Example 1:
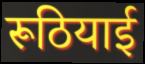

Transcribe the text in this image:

रूठियाई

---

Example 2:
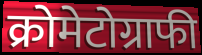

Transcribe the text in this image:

क्रोमेटोग्राफी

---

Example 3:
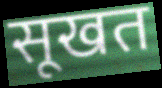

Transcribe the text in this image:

सूखत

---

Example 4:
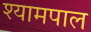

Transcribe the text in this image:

श्यामपाल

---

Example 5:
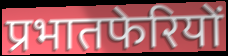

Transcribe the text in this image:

प्रभातफेरियों